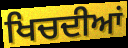
ਖਿਚਦੀਆਂ